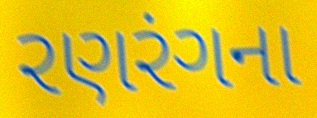
રણરંગના